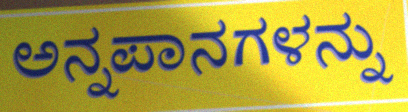
ಅನ್ನಪಾನಗಳನ್ನು